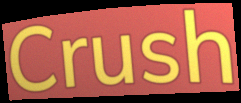
Crush